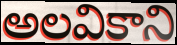
అలవికాని